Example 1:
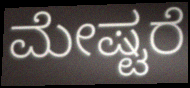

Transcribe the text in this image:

ಮೇಷ್ಟರೆ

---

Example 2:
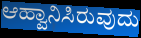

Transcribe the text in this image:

ಆಹ್ವಾನಿಸಿರುವುದು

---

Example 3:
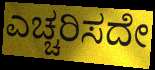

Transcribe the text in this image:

ಎಚ್ಚರಿಸದೇ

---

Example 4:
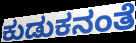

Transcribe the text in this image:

ಕುಡುಕನಂತೆ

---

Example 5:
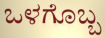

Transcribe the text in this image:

ಒಳಗೊಬ್ಬ